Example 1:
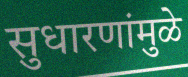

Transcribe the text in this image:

सुधारणांमुळे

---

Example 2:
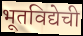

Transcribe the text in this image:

भूतविद्येची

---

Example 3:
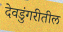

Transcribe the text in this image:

देवडुंगरीतील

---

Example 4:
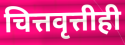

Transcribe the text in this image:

चित्तवृत्तीही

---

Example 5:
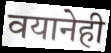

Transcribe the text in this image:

वयानेही